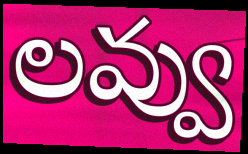
లవ్వు